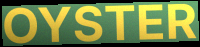
OYSTER